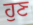
ਹੁਣ